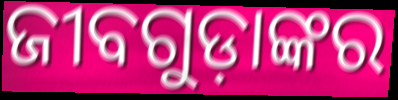
ଜୀବଗୁଡ଼ାଙ୍କର